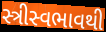
સ્ત્રીસ્વભાવથી